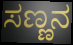
ಸಣ್ಣನ